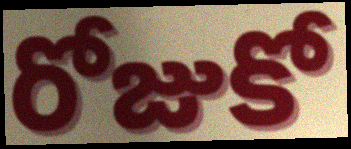
రోజుకో